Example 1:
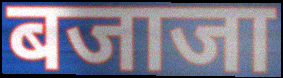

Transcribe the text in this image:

बजाजा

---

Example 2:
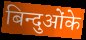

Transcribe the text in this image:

बिन्दुओंके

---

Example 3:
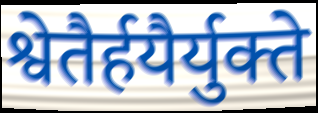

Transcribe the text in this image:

श्वेतैर्हयैर्युक्ते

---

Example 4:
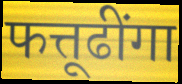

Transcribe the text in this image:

फत्तूढींगा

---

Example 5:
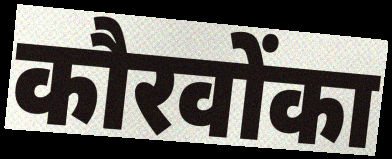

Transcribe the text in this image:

कौरवोंका